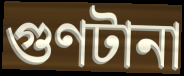
গুণটানা